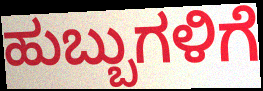
ಹುಬ್ಬುಗಳಿಗೆ